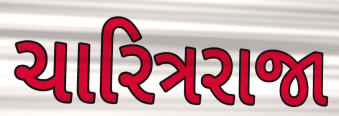
ચારિત્રરાજા